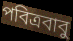
পবিত্রবাবু